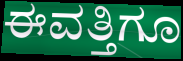
ಈವತ್ತಿಗೂ